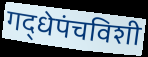
गद्धेपंचविशी